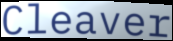
Cleaver